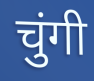
चुंगी